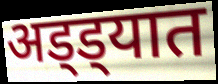
अड्ड्यात